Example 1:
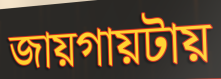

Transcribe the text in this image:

জায়গায়টায়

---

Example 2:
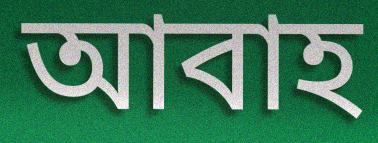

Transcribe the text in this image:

আবাহ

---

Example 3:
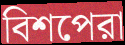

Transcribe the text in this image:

বিশপেরা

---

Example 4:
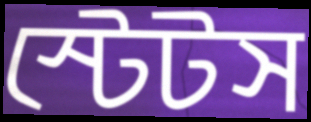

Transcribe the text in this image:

স্টেটস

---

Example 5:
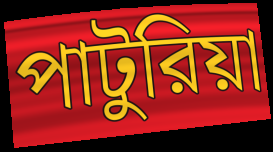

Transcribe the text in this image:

পাটুরিয়া